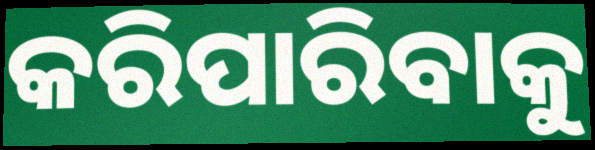
କରିପାରିବାକୁ